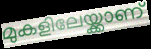
മുകളിലേയ്ക്കാണ്